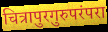
चित्रापुरगुरुपरंपरा